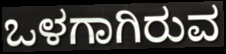
ಒಳಗಾಗಿರುವ